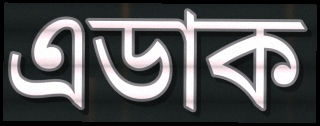
এডাক